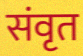
संवृत